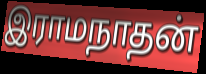
இராமநாதன்